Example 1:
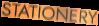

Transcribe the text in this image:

STATIONERY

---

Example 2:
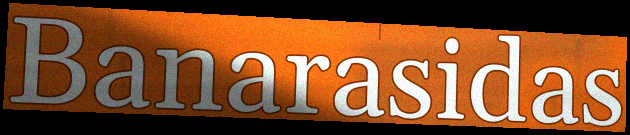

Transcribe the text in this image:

Banarasidas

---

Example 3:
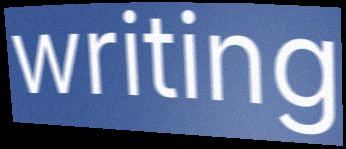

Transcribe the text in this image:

writing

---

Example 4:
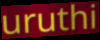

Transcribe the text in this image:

uruthi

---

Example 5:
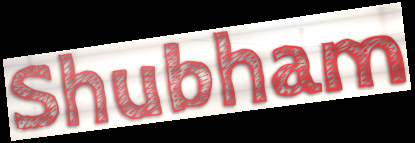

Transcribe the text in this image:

Shubham